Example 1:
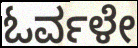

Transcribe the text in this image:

ಓರ್ವಳೇ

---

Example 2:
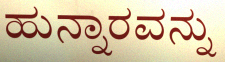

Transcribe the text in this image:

ಹುನ್ನಾರವನ್ನು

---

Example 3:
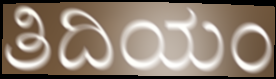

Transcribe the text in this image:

ತಿದಿಯಂ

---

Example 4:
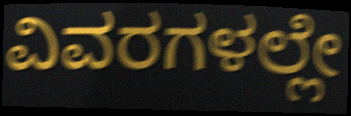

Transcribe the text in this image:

ವಿವರಗಳಲ್ಲೇ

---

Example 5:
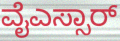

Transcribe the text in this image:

ವೈಎಸ್ಸಾರ್